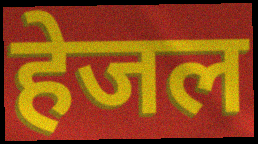
हेजल